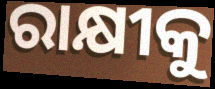
ରାକ୍ଷୀକୁ